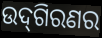
ଉଦ୍‌ଗିରଣର